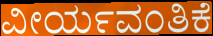
ವೀರ್ಯವಂತಿಕೆ